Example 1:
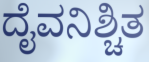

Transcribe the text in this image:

ದೈವನಿಶ್ಚಿತ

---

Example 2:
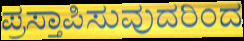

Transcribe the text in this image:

ಪ್ರಸ್ತಾಪಿಸುವುದರಿಂದ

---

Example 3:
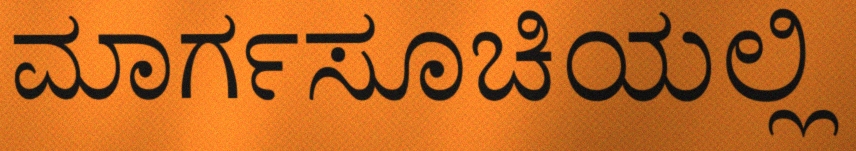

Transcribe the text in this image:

ಮಾರ್ಗಸೂಚಿಯಲ್ಲಿ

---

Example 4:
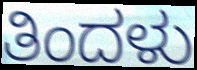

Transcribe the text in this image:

ತಿಂದಳು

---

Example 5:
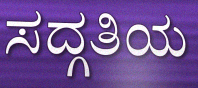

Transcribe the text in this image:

ಸದ್ಗತಿಯ